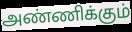
அண்ணிக்கும்